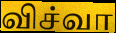
விச்வா